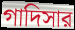
গাদিসার